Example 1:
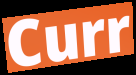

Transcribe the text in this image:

Curr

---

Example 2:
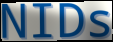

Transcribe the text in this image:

NIDs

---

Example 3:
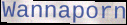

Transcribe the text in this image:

Wannaporn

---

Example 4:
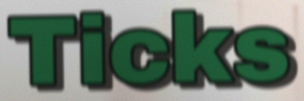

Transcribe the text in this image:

Ticks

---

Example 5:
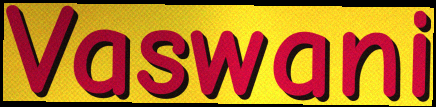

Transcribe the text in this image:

Vaswani